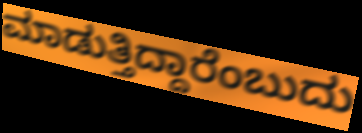
ಮಾಡುತ್ತಿದ್ದಾರೆಂಬುದು